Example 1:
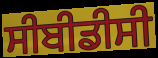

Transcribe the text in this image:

ਸੀਬੀਡੀਸੀ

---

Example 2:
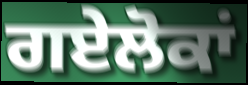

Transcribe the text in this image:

ਗਏਲੋਕਾਂ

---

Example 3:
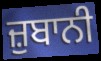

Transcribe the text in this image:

ਜ਼ੁਬਾਨੀ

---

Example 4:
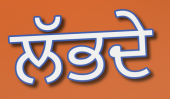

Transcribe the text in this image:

ਲੱਭਦੇ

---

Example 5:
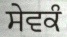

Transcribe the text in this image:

ਸੇਵਕੰ